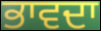
ਭਾਵਦਾ